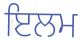
ਇਲਮ